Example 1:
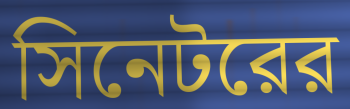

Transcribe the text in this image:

সিনেটরের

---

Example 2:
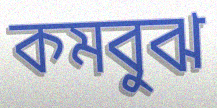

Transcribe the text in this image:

কমবুঝ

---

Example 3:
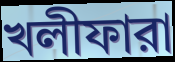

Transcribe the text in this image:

খলীফারা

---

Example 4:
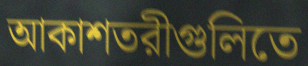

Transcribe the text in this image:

আকাশতরীগুলিতে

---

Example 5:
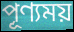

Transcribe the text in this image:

পূণ্যময়